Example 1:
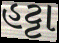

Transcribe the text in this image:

હટ્ટા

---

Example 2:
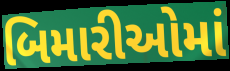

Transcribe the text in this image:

બિમારીઓમાં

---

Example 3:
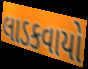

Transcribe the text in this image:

લાડકવાયો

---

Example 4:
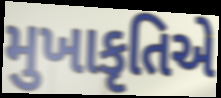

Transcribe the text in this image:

મુખાકૃતિએ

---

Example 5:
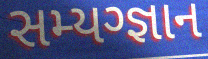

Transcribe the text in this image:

સમ્યગ્જ્ઞાન